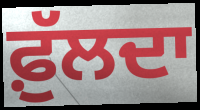
ਫ਼ੁੱਲਦਾ